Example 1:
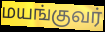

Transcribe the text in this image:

மயங்குவர்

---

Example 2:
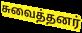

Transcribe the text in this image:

சுவைத்தனர்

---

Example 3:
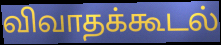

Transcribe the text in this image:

விவாதக்கூடல்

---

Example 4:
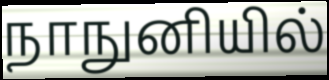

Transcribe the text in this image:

நாநுனியில்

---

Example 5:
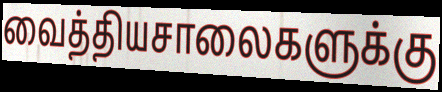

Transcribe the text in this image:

வைத்தியசாலைகளுக்கு